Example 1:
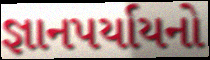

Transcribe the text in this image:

જ્ઞાનપર્યાયનો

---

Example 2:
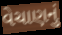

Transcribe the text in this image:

વેચાણનું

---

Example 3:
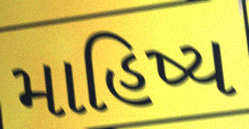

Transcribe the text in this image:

માહિષ્ય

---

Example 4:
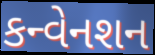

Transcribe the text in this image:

કન્વેનશન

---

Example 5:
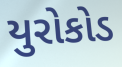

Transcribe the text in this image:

યુરોકોડ